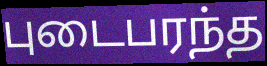
புடைபரந்த